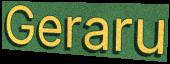
Geraru